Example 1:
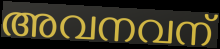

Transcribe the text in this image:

അവനവന്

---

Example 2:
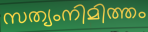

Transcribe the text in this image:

സത്യംനിമിത്തം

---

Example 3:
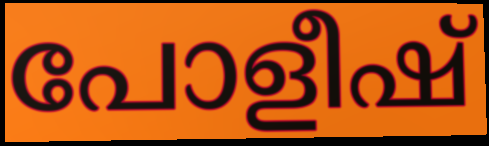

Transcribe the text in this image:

പോളീഷ്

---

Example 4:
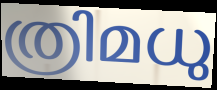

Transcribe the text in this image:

ത്രിമധു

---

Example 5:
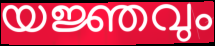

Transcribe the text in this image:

യജ്ഞവും